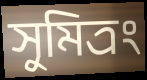
সুমিত্রং